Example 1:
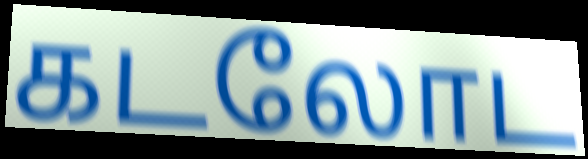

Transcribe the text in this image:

கடலோட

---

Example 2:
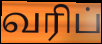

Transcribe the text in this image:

வரிப்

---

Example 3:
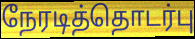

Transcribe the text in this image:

நேரடித்தொடர்பு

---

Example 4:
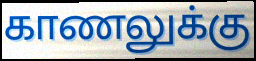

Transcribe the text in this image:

காணலுக்கு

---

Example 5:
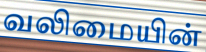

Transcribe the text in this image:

வலிமையின்